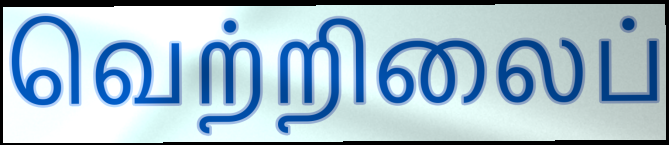
வெற்றிலைப்